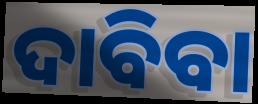
ଦାବିବା